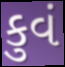
કુવં